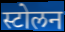
स्टोलन